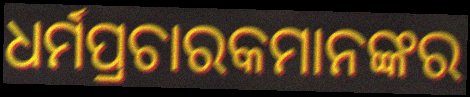
ଧର୍ମପ୍ରଚାରକମାନଙ୍କର